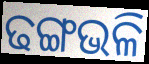
ଢଙ୍ଗଭଳି